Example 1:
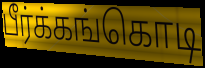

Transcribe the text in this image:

பீர்க்கங்கொடி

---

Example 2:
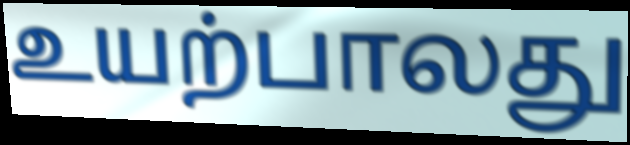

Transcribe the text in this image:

உயற்பாலது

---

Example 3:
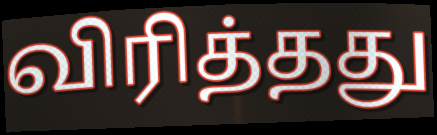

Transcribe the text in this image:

விரித்தது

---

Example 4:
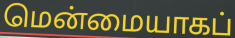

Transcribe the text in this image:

மென்மையாகப்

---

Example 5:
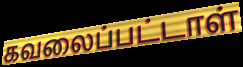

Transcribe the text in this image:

கவலைப்பட்டாள்